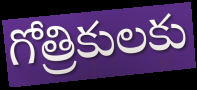
గోత్రికులకు